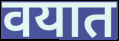
वयात